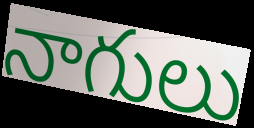
నాగులు